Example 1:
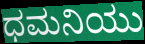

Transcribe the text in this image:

ಧಮನಿಯು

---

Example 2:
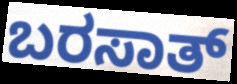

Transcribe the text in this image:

ಬರಸಾತ್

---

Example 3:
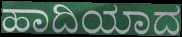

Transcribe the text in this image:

ಹಾದಿಯಾದ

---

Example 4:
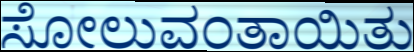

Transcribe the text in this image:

ಸೋಲುವಂತಾಯಿತು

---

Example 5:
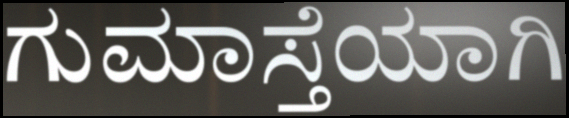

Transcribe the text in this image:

ಗುಮಾಸ್ತೆಯಾಗಿ